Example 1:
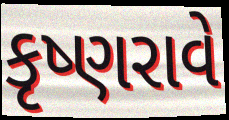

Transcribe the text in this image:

કૃષ્ણરાવે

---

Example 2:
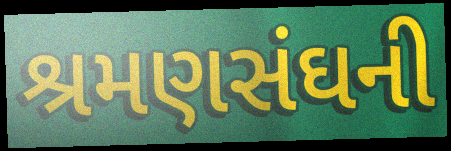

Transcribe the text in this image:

શ્રમણસંઘની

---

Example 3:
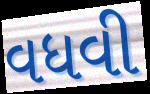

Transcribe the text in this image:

વધવી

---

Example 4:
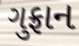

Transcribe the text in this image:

ગુફ્રાન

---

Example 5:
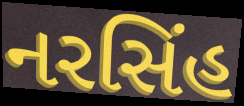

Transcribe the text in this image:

નરસિંહ